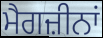
ਮੈਗਜ਼ੀਨਾਂ